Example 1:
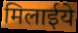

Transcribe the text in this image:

मिलाईये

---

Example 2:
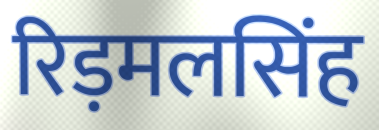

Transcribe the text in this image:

रिड़मलसिंह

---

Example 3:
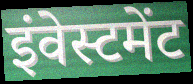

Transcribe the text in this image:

इंवेस्टमेंट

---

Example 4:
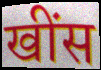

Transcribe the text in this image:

खींस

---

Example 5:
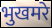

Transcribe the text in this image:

भुखमरे